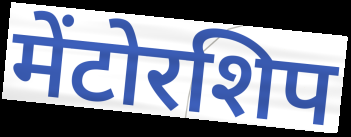
मेंटोरशिप